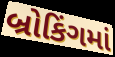
બ્રોકિંગમાં